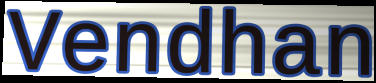
Vendhan